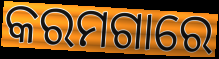
କରମଗାରେ